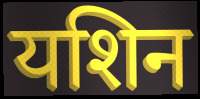
यशिन